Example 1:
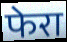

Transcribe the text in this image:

फेरा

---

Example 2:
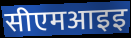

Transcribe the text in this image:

सीएमआइइ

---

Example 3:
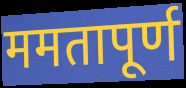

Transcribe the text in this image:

ममतापूर्ण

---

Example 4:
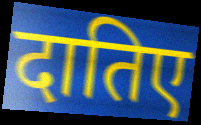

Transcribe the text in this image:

दातिए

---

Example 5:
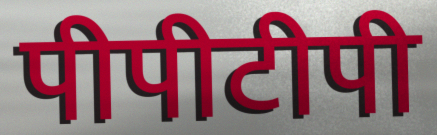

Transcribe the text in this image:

पीपीटीपी